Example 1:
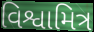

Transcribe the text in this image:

વિશ્વામિત્ર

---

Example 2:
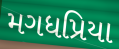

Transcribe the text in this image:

મગધપ્રિયા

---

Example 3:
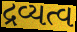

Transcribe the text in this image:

દ્રવ્યત્વ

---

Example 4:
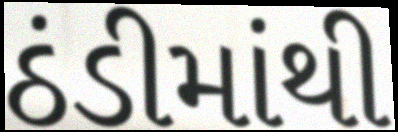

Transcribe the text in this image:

ઠંડીમાંથી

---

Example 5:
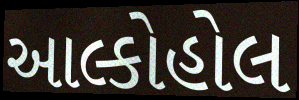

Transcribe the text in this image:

આલ્કોહોલ